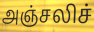
அஞ்சலிச்